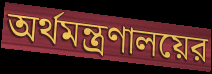
অর্থমন্ত্রণালয়ের